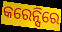
କରେନ୍ସିରେ